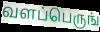
வளப்பெருங்